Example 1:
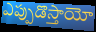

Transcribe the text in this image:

ఎప్పుడొస్తాయో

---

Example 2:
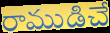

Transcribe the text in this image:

రాముడిచే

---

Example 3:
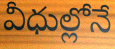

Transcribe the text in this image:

వీధుల్లోనే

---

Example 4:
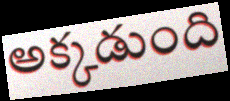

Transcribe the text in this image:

అక్కడుంది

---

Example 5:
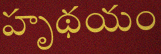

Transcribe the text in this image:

హృథయం